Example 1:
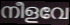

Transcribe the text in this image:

നീളവേ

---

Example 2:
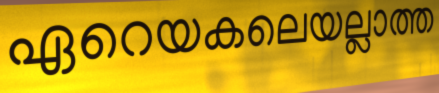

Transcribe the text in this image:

ഏറെയകലെയല്ലാത്ത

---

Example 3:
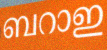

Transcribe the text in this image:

ബറാഇ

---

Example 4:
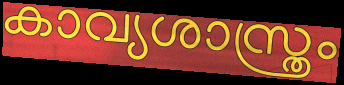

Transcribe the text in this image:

കാവ്യശാസ്ത്രം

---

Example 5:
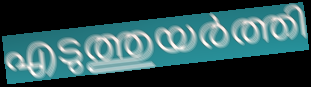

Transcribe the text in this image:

എടുത്തുയർത്തി